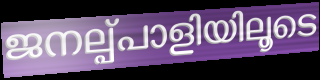
ജനല്പ്പാളിയിലൂടെ